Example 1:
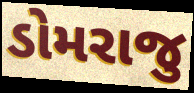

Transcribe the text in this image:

ડોમરાજુ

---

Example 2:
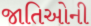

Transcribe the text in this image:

જાતિઓની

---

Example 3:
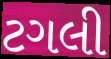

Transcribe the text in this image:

ટગલી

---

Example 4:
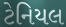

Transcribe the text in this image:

ટેનિયલ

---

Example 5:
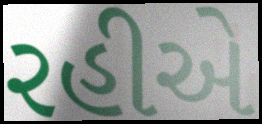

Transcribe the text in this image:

રહીએ